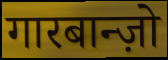
गारबान्ज़ो